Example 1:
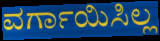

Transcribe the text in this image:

ವರ್ಗಾಯಿಸಿಲ್ಲ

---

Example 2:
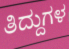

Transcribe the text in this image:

ತಿದ್ದುಗಳ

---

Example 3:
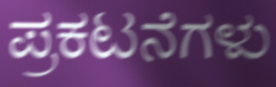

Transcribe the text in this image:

ಪ್ರಕಟನೆಗಳು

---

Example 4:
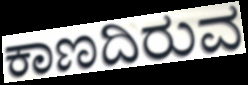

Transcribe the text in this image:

ಕಾಣದಿರುವ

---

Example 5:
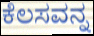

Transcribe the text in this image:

ಕೆಲಸವನ್ನ